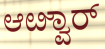
ಆೞ್ವಾರ್